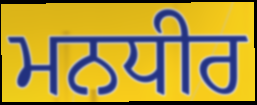
ਮਨਧੀਰ